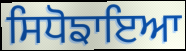
ਸਿਧੋਙਾਇਆ